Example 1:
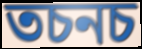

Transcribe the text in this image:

তচনচ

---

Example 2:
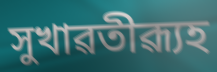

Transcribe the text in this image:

সুখাৱতীৱ্যূহ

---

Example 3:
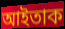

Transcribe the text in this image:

আইতাক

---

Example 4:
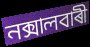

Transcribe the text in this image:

নক্সালবাৰী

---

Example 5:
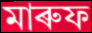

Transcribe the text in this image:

মাৰুফ